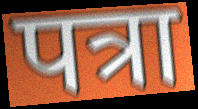
पत्रा